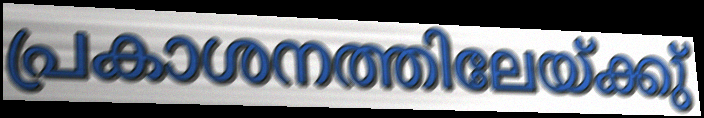
പ്രകാശനത്തിലേയ്ക്കു്